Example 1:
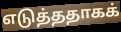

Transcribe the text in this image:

எடுத்ததாகக்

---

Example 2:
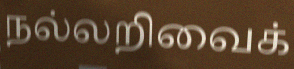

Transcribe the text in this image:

நல்லறிவைக்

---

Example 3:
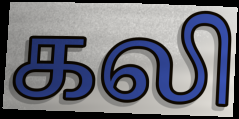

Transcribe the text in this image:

கலி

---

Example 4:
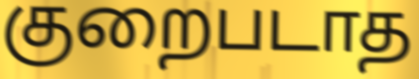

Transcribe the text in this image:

குறைபடாத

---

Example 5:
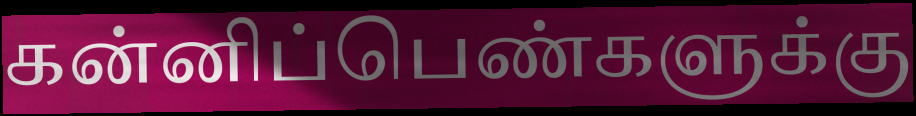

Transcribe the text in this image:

கன்னிப்பெண்களுக்கு